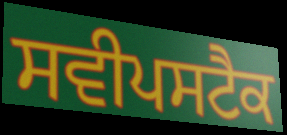
ਸਵੀਪਸਟੈਕ